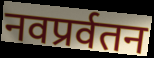
नवप्रर्वतन